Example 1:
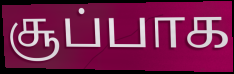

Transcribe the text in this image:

சூப்பாக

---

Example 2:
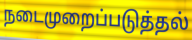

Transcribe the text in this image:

நடைமுறைப்படுத்தல்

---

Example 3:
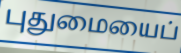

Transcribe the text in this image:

புதுமையைப்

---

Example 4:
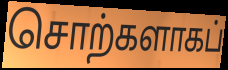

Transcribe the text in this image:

சொற்களாகப்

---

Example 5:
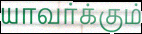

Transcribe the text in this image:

யாவர்க்கும்